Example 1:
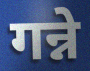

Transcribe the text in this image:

गन्ने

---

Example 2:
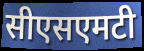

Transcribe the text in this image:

सीएसएमटी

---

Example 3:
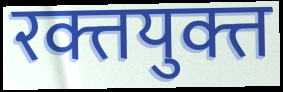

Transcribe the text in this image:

रक्तयुक्त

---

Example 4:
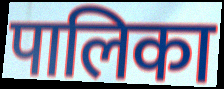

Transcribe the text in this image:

पालिका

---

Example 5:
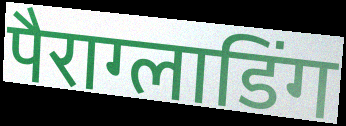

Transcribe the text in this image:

पैराग्लाडिंग